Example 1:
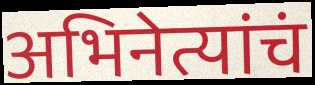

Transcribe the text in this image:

अभिनेत्यांचं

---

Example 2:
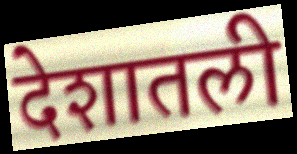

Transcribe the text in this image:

देशातली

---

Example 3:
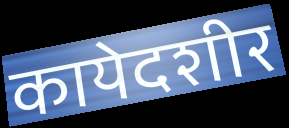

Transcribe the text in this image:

कायेदशीर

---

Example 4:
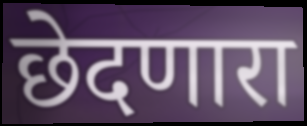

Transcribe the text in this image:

छेदणारा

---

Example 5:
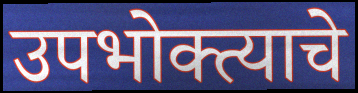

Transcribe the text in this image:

उपभोक्त्याचे